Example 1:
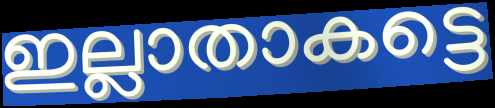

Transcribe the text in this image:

ഇല്ലാതാകട്ടെ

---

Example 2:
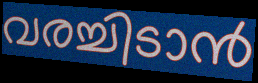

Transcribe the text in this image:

വരച്ചിടാൻ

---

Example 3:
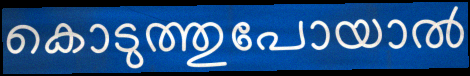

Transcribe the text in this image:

കൊടുത്തുപോയാൽ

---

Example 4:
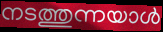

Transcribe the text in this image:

നടത്തുന്നയാൾ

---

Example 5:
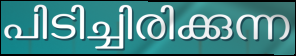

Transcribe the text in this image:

പിടിച്ചിരിക്കുന്ന